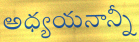
అధ్యయనాన్నీ